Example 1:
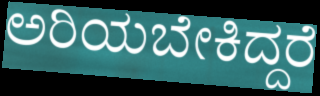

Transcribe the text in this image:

ಅರಿಯಬೇಕಿದ್ದರೆ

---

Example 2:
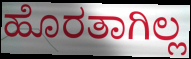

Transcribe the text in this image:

ಹೊರತಾಗಿಲ್ಲ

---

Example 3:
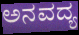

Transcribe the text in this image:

ಅನವದ್ಯ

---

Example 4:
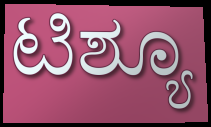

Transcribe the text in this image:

ಟಿಶ್ಯೂ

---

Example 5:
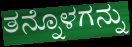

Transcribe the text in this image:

ತನ್ನೊಳಗನ್ನು